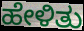
ಹೇಳಿತು